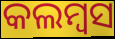
କଲମ୍ବସ